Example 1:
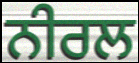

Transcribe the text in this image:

ਨੀਰਲ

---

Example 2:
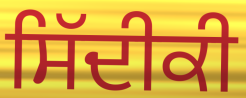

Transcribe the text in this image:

ਸਿੱਦੀਕੀ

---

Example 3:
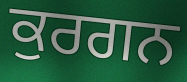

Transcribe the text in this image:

ਕੁਰਗਨ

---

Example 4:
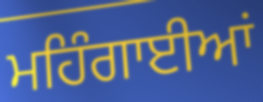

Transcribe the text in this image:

ਮਹਿੰਗਾਈਆਂ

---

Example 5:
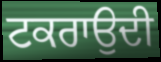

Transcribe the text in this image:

ਟਕਰਾਉਦੀ